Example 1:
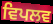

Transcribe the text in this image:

ਵਿਪਲਵ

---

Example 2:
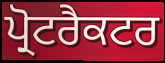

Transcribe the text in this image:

ਪ੍ਰੋਟਰੈਕਟਰ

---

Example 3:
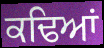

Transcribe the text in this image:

ਕਢਿਆਂ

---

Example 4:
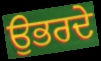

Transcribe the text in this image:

ਉਭਰਦੇ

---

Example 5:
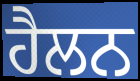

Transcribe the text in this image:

ਹੈਲਨ